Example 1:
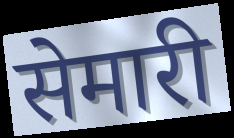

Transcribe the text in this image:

सेमारी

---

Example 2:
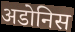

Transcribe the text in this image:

अडोनिस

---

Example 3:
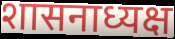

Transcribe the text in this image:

शासनाध्यक्ष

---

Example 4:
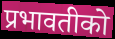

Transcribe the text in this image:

प्रभावतीको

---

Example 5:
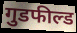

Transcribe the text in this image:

गुडफील्ड